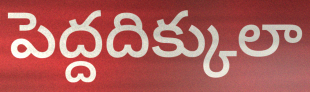
పెద్దదిక్కులా